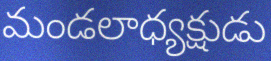
మండలాధ్యక్షుడు